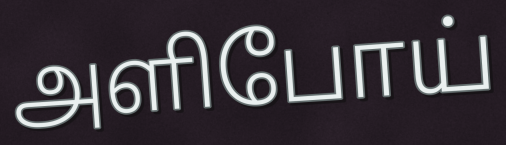
அளிபோய்